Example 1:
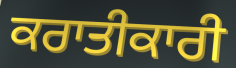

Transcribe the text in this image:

ਕਰਾਤੀਕਾਰੀ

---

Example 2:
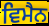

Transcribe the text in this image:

ਵਿਮੈਨ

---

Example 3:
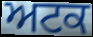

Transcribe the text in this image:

ਅਟਕ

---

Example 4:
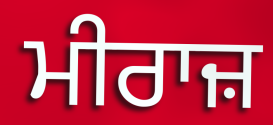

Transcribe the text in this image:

ਮੀਰਾਜ਼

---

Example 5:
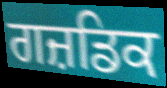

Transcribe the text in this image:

ਗਜ਼ਡਿਕ